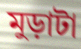
মুড়াটা